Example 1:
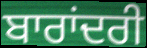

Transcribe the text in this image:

ਬਾਰਾਂਦਰੀ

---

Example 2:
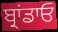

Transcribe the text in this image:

ਬ੍ਰਾਂਡਾਓ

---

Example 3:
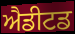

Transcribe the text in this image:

ਐਡੀਟਡ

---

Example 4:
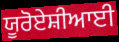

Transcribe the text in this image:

ਯੂਰੋਏਸ਼ੀਆਈ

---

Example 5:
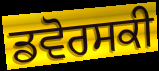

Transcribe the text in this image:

ਡਵੋਰਸਕੀ